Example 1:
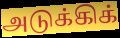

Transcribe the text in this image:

அடுக்கிக்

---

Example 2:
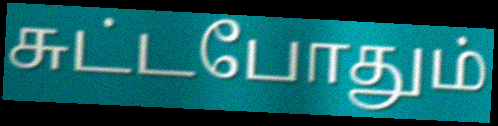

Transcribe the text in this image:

சுட்டபோதும்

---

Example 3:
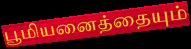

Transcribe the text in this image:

பூமியனைத்தையும்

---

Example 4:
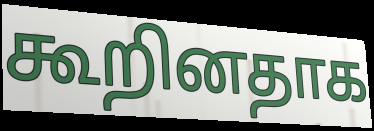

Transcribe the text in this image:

கூறினதாக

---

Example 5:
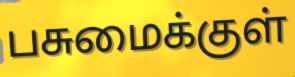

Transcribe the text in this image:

பசுமைக்குள்